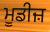
ਮੂਡੀਜ਼